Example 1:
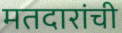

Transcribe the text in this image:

मतदारांची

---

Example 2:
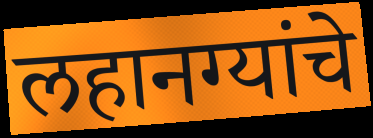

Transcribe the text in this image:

लहानग्यांचे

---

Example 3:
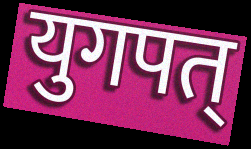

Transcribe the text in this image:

युगपत्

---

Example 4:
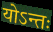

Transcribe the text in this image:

योऽन्तः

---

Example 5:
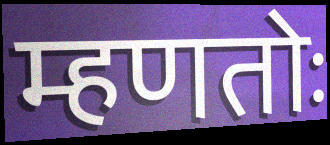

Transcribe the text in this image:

म्हणतोः